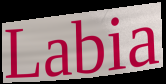
Labia